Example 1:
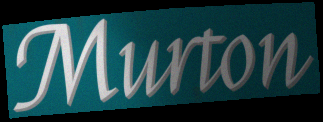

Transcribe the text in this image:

Murton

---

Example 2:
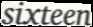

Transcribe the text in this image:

sixteen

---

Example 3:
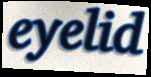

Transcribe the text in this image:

eyelid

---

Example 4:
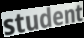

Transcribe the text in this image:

student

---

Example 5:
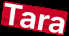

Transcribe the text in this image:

Tara